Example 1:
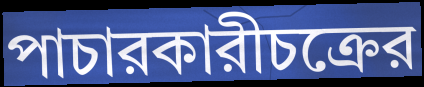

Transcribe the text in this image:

পাচারকারীচক্রের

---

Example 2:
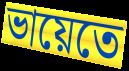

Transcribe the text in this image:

ভায়েতে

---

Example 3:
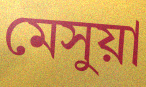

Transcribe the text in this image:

মেসুয়া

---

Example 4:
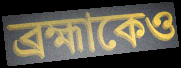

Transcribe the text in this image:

ব্রহ্মাকেও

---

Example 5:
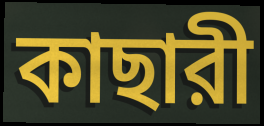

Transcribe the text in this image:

কাছারী